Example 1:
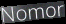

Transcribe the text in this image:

Nomor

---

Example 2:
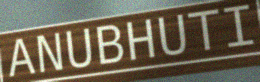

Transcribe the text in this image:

ANUBHUTI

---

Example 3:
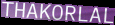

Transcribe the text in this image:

THAKORLAL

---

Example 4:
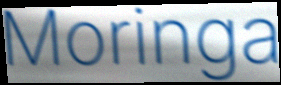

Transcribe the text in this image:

Moringa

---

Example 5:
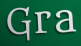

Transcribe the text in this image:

Gra